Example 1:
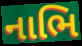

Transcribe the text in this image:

નાભિ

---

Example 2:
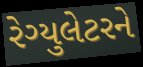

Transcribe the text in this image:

રેગ્યુલેટરને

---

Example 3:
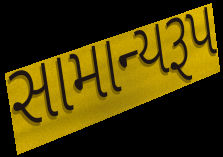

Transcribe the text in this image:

સામાન્યરૂપ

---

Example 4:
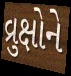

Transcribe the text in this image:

વ્રુક્ષોને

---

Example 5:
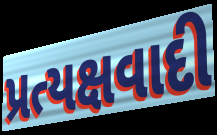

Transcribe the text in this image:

પ્રત્યક્ષવાદી